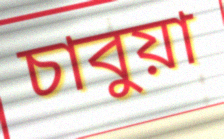
চাবুয়া